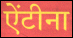
ऐंटीना